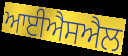
ਆਈਐਸਐਲ